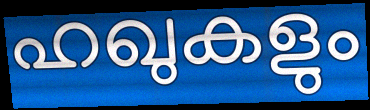
ഹഖുകളും